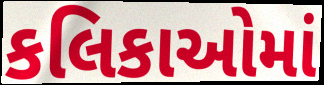
કલિકાઓમાં